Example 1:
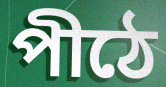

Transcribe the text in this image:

পীঠে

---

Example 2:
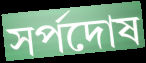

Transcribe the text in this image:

সর্পদোষ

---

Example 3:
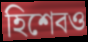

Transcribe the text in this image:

হিশেবও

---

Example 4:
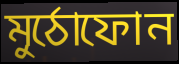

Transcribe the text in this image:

মুঠোফোন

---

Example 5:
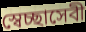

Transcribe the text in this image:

স্বেচ্ছাসেবী